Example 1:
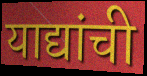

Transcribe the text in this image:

याद्यांची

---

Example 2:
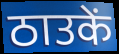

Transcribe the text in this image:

ठाउकें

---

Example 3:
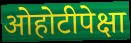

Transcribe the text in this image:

ओहोटीपेक्षा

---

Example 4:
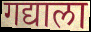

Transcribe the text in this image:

गद्याला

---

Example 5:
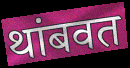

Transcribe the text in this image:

थांबवत